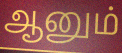
ஆனும்